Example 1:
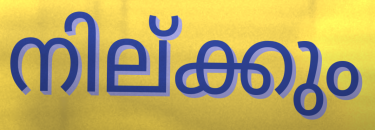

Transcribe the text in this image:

നില്ക്കും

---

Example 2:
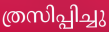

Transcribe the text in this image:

ത്രസിപ്പിച്ചു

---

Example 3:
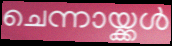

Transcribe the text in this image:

ചെന്നായ്ക്കൾ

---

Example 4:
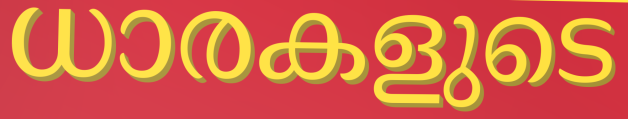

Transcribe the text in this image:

ധാരകളുടെ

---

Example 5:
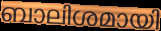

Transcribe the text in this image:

ബാലിശമായി